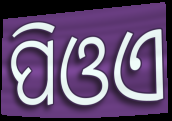
ପିଓଏ